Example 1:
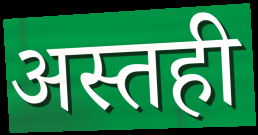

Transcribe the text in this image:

अस्तही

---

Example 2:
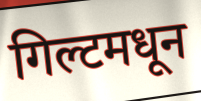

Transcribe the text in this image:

गिल्टमधून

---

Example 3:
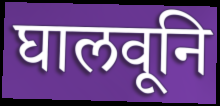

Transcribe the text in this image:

घालवूनि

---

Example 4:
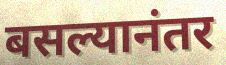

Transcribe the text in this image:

बसल्यानंतर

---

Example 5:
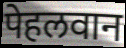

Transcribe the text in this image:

पेहलवान